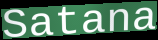
Satana